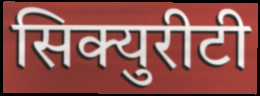
सिक्युरीटी